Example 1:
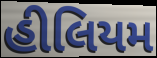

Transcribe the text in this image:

હીલિયમ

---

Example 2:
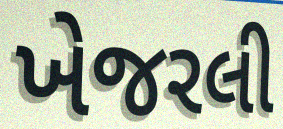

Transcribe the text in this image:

ખેજરલી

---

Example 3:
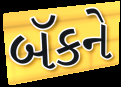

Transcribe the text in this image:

બૅકને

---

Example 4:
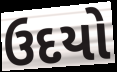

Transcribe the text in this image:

ઉદયો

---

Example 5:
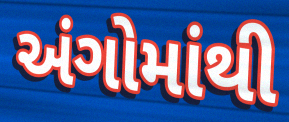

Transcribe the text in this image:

અંગોમાંથી